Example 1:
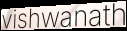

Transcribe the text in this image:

vishwanath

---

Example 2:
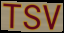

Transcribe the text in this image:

TSV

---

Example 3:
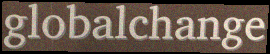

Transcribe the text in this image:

globalchange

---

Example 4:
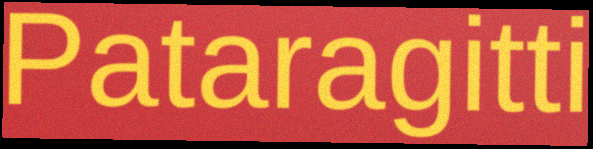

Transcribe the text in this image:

Pataragitti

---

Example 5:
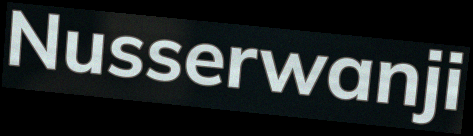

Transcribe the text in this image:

Nusserwanji